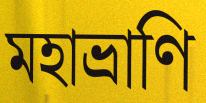
মহাভ্রাণি